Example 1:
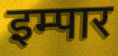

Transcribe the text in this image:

इम्पार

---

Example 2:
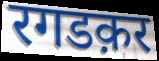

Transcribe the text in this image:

रगडक़र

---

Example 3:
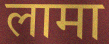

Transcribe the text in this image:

लामा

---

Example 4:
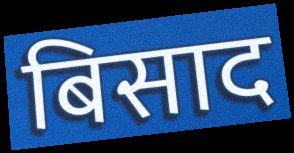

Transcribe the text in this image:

बिसाद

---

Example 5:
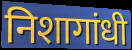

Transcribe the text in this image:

निशागांधी